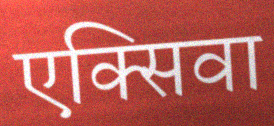
एक्सिवा